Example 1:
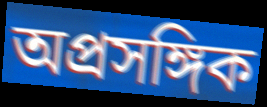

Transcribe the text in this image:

অপ্রসঙ্গিক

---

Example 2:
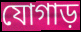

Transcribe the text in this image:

যোগাড়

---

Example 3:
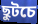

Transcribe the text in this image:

ছুটচে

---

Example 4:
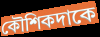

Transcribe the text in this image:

কৌশিকদাকে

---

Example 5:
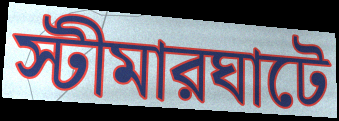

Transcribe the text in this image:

স্টীমারঘাটে